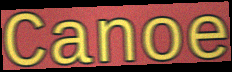
Canoe